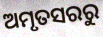
ଅମୃତସରରୁ